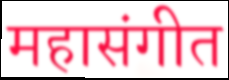
महासंगीत